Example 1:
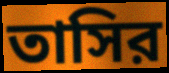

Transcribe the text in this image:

তাসির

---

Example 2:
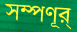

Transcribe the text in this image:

সম্পণূর্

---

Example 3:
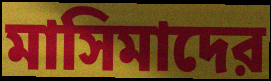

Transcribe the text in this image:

মাসিমাদের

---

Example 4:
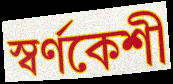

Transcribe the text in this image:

স্বর্ণকেশী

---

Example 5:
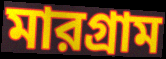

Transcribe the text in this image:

মারগ্রাম